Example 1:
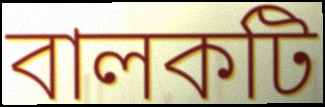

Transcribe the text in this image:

বালকটি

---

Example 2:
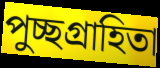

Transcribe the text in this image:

পুচ্ছগ্রাহিতা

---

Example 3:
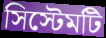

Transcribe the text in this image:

সিস্টেমটি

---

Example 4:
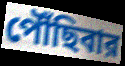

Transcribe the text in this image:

পৌঁছিবার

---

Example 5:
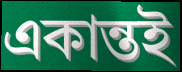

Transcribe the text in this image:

একান্তই